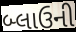
બ્લાઉની